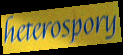
heterospory